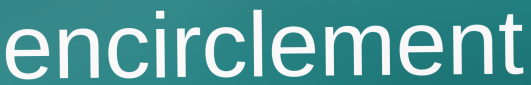
encirclement